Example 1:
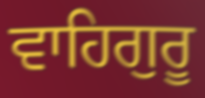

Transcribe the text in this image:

ਵਾਹਿਗੁਰੂ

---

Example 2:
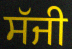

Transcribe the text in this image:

ਸੱਜੀ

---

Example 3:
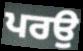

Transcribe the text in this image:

ਪਰਉ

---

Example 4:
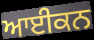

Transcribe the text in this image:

ਆਈਕਨ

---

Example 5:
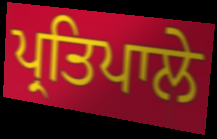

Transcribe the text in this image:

ਪ੍ਰਤਿਪਾਲੇ